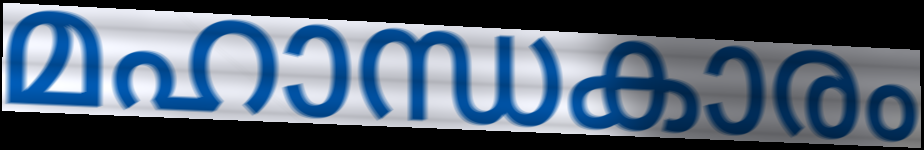
മഹാന്ധകാരം